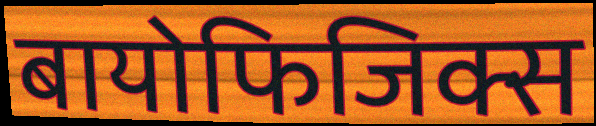
बायोफिजिक्स